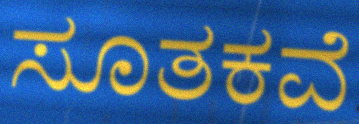
ಸೂತಕವೆ